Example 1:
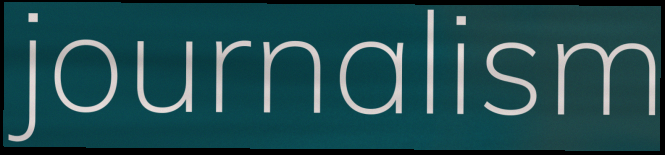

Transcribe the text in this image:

journalism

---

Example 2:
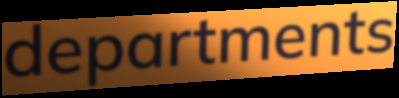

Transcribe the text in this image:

departments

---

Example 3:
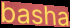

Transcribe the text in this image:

basha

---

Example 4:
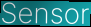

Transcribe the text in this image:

Sensor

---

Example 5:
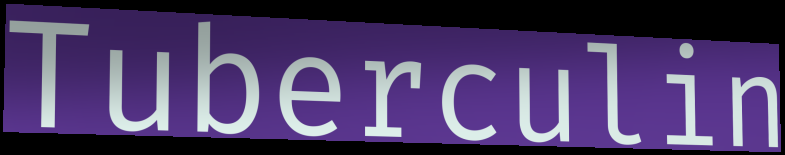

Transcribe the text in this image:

Tuberculin